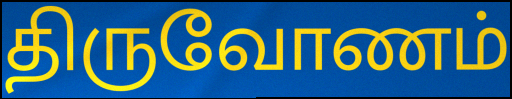
திருவோணம்